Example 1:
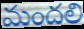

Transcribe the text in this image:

మందలి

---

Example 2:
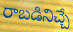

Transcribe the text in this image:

రాబడినిచ్చే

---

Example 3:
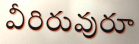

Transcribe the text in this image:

వీరిరువురూ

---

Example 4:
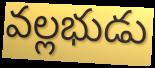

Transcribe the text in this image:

వల్లభుడు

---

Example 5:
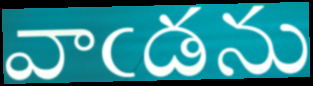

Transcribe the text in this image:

వాఁడను